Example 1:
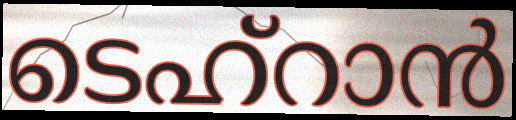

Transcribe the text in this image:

ടെഹ്റാൻ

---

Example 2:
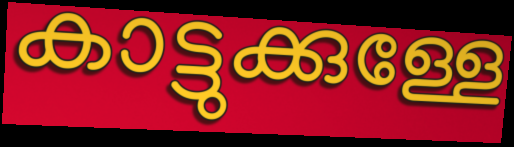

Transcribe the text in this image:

കാട്ടുക്കുള്ളേ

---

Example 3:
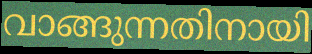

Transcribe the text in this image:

വാങ്ങുന്നതിനായി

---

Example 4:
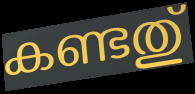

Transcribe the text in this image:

കണ്ടതു്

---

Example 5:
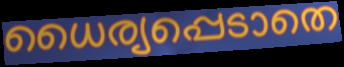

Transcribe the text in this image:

ധൈര്യപ്പെടാതെ